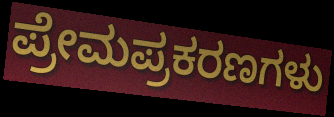
ಪ್ರೇಮಪ್ರಕರಣಗಳು